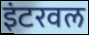
इंटरवल